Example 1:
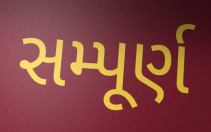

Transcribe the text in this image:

સમ્પૂર્ણ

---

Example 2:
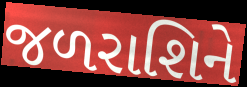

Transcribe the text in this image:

જળરાશિને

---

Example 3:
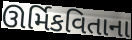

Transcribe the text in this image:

ઊર્મિકવિતાના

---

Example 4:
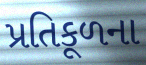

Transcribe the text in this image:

પ્રતિકૂળના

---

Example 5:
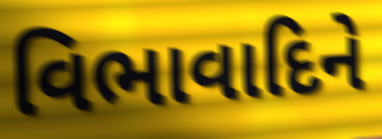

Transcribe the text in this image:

વિભાવાદિને